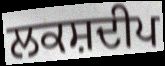
ਲਕਸ਼ਦੀਪ